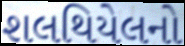
શલથિયેલનો